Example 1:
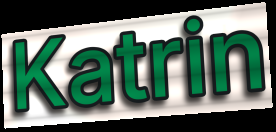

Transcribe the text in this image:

Katrin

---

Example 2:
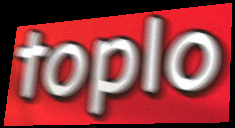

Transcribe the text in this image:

toplo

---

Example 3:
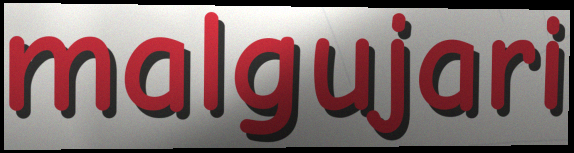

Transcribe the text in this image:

malgujari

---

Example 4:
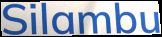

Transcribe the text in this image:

Silambu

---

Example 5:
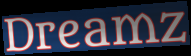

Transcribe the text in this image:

Dreamz